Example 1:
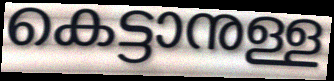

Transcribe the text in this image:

കെട്ടാനുള്ള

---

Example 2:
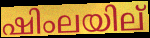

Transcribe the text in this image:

ഷിംലയില്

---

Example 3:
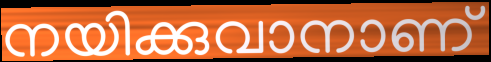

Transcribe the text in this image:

നയിക്കുവാനാണ്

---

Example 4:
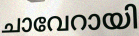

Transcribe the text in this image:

ചാവേറായി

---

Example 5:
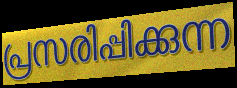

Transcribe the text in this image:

പ്രസരിപ്പിക്കുന്ന